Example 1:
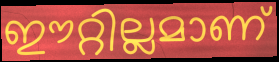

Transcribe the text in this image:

ഈറ്റില്ലമാണ്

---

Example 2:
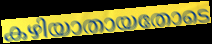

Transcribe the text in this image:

കഴിയാതായതോടെ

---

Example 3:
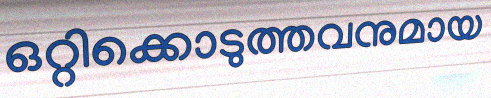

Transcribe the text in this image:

ഒറ്റിക്കൊടുത്തവനുമായ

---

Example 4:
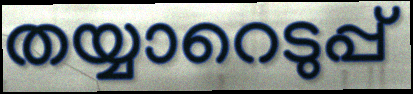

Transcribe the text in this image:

തയ്യാറെടുപ്പ്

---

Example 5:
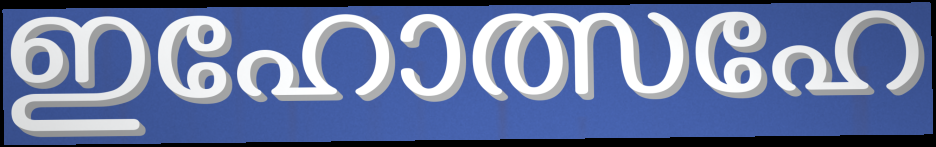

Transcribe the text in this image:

ഇഹോത്സഹേ